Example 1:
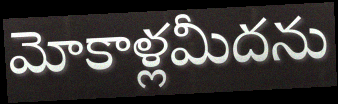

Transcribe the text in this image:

మోకాళ్లమీదను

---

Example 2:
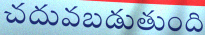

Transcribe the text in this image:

చదువబడుతుంది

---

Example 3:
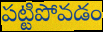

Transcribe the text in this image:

పట్టిపోవడం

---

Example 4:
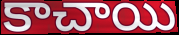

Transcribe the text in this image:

కాచాయి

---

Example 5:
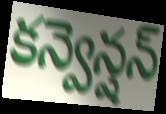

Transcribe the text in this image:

కన్వెన్షన్